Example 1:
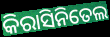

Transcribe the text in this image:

କିରାସିନିତେଲ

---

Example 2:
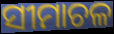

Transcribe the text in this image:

ସୀମାଚଳ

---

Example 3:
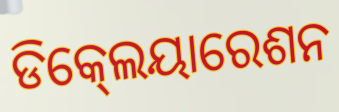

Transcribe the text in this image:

ଡିକ୍‍ଲେୟାରେଶନ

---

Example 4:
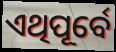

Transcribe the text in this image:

ଏଥିପୂର୍ବେ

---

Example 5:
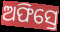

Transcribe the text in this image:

ଅଫିସ୍ରେ